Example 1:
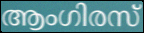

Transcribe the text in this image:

ആംഗിരസ്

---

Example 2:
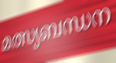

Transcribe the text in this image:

മത്സ്യബന്ധന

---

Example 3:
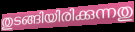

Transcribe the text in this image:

തുടങ്ങിയിരിക്കുന്നതു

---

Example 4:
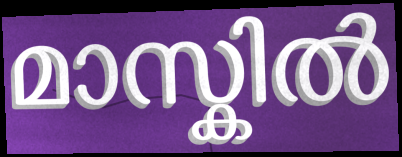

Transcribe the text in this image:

മാസ്കിൽ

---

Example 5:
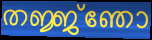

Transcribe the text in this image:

തജ്ജ്ഞോ